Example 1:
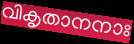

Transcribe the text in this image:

വികൃതാനനാഃ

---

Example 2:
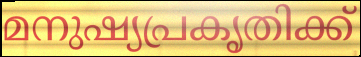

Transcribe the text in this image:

മനുഷ്യപ്രകൃതിക്ക്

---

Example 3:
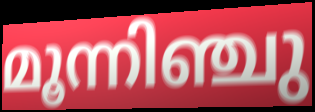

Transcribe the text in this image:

മൂന്നിഞ്ചു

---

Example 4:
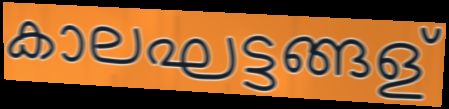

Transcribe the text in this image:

കാലഘട്ടങ്ങള്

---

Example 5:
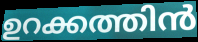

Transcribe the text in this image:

ഉറക്കത്തിൻ